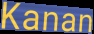
Kanan